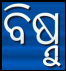
ବିଷ୍ନୁ